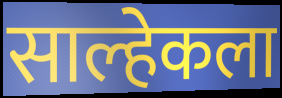
साल्हेकला